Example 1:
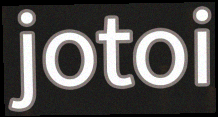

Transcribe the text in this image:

jotoi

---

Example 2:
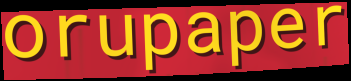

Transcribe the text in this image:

orupaper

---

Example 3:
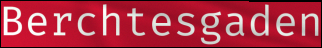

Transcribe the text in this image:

Berchtesgaden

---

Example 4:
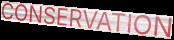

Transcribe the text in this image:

CONSERVATION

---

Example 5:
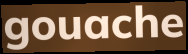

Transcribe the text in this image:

gouache